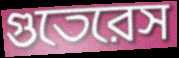
গুতেরেস